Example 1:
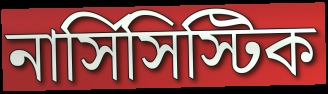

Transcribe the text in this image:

নার্সিসিস্টিক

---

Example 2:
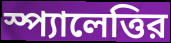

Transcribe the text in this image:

স্প্যালেত্তির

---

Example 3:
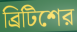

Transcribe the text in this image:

ব্রিটিশের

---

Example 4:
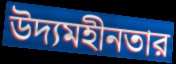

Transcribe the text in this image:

উদ্যমহীনতার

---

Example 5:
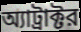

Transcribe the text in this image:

অ্যাট্রাক্টর